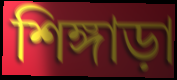
শিঙ্গাড়া